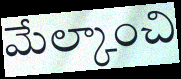
మేల్కాంచి